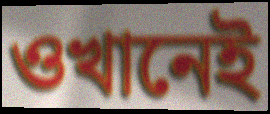
ওখানেই